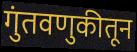
गुंतवणुकीतून